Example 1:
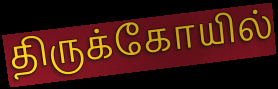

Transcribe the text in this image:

திருக்கோயில்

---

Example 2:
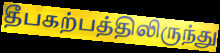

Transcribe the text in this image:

தீபகற்பத்திலிருந்து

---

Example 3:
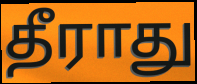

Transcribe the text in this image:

தீராது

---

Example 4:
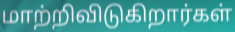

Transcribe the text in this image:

மாற்றிவிடுகிறார்கள்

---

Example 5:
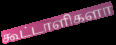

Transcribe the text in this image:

கூட்டாளிகளா